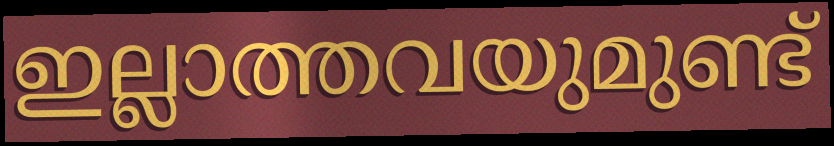
ഇല്ലാത്തവയുമുണ്ട്